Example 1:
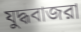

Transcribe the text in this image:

যুদ্ধবাজরা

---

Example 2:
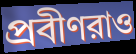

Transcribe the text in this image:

প্রবীণরাও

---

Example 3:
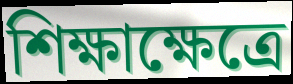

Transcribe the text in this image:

শিক্ষাক্ষেত্রে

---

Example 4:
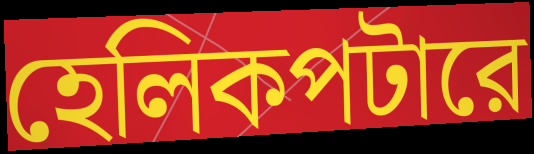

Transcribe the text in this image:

হেলিকপটারে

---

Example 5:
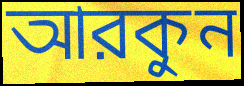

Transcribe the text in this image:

আরকুন